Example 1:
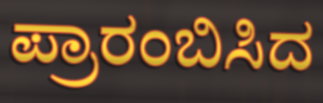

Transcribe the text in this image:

ಪ್ರಾರಂಬಿಸಿದ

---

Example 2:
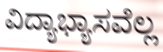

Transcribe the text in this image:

ವಿದ್ಯಾಭ್ಯಾಸವೆಲ್ಲ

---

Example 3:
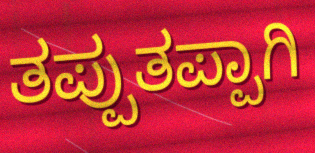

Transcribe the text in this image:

ತಪ್ಪುತಪ್ಪಾಗಿ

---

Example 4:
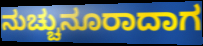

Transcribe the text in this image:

ನುಚ್ಚುನೂರಾದಾಗ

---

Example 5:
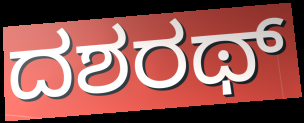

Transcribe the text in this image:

ದಶರಥ್